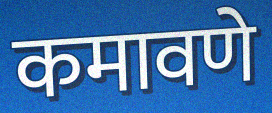
कमावणे